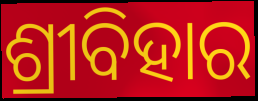
ଶ୍ରୀବିହାର